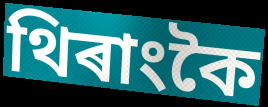
থিৰাংকৈ